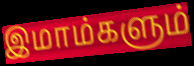
இமாம்களும்